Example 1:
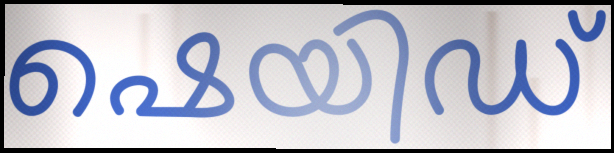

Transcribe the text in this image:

ഷെയിഡ്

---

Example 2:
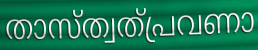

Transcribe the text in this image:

താസ്ത്വത്പ്രവണാ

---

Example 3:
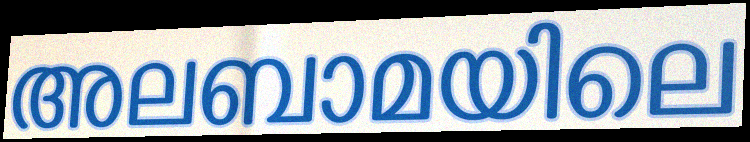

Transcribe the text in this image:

അലബാമയിലെ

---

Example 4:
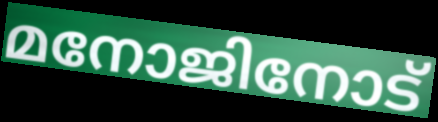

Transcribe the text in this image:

മനോജിനോട്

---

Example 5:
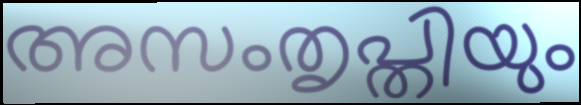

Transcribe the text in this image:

അസംതൃപ്തിയും